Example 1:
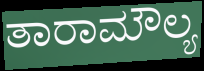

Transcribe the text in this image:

ತಾರಾಮೌಲ್ಯ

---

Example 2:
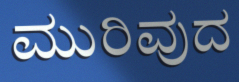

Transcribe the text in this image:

ಮುರಿವುದ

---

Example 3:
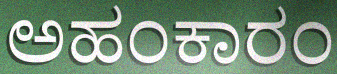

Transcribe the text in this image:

ಅಹಂಕಾರಂ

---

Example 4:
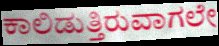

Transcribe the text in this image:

ಕಾಲಿಡುತ್ತಿರುವಾಗಲೇ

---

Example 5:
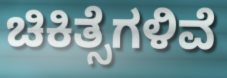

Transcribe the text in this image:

ಚಿಕಿತ್ಸೆಗಳಿವೆ